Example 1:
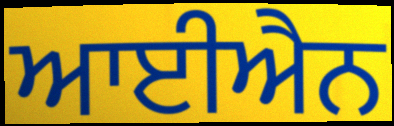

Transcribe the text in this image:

ਆਈਐਨ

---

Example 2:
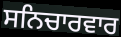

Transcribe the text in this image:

ਸਨਿਚਾਰਵਾਰ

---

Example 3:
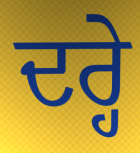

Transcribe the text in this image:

ਦਰ੍ਹੇ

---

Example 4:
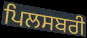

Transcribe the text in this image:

ਪਿਲਸਬਰੀ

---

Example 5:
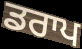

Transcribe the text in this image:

ਡਰਾਪ